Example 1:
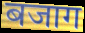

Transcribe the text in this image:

बजाग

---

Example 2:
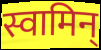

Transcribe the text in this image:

स्वामिन्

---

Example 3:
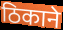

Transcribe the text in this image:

ठिकाने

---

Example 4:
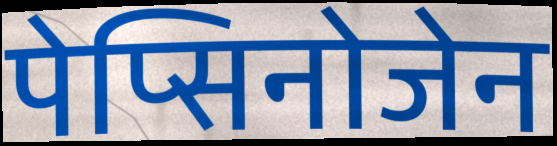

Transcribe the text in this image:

पेप्सिनोजेन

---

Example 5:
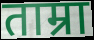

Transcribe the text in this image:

ताम्रा